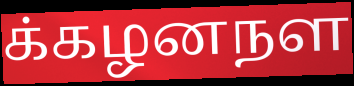
க்கழனநள